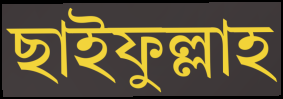
ছাইফুল্লাহ